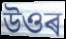
উওৰ